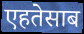
एहतेसाब